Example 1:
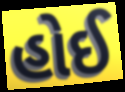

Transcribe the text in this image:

હોઈ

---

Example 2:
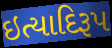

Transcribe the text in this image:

ઇત્યાદિરૂપ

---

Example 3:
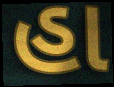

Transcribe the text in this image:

હા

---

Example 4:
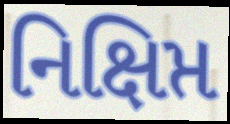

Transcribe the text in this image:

નિક્ષિપ્ત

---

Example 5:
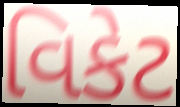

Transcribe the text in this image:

વિકેટ